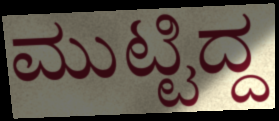
ಮುಟ್ಟಿದ್ದ